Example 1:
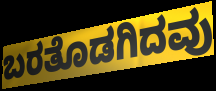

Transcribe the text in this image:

ಬರತೊಡಗಿದವು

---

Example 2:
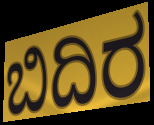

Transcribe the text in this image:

ಬಿದಿರ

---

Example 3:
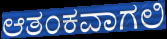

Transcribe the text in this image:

ಆತಂಕವಾಗಲಿ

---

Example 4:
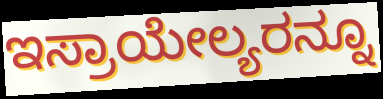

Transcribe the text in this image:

ಇಸ್ರಾಯೇಲ್ಯರನ್ನೂ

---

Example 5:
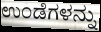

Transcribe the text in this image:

ಉಂಡೆಗಳನ್ನು